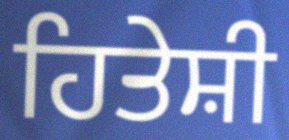
ਹਿਤੇਸ਼ੀ